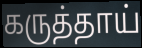
கருத்தாய்